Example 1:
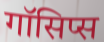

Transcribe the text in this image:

गॉसिप्स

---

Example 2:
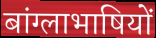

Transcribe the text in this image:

बांग्लाभाषियों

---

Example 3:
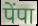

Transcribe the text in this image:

पेंपा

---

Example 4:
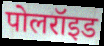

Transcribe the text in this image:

पोलरॉइड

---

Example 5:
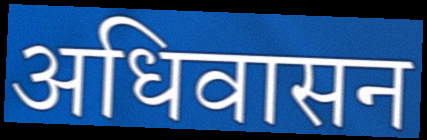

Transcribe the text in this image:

अधिवासन